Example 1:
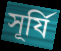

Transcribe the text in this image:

সূর্যি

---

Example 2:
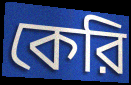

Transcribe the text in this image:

কেরি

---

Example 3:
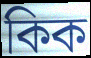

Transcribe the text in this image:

কিক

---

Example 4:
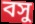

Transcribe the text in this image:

বসু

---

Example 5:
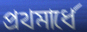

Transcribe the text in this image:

প্রথমার্ধে